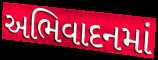
અભિવાદનમાં